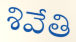
శివేతి